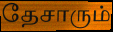
தேசாரும்